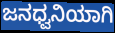
ಜನಧ್ವನಿಯಾಗಿ